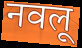
नवलू